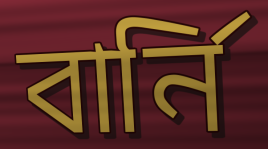
বার্নি